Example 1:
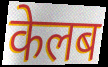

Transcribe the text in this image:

केलब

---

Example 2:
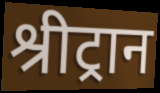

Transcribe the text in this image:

श्रीट्रान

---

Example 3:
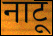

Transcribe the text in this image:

नाटू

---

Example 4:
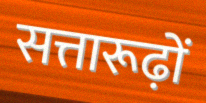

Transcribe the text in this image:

सत्तारूढ़ों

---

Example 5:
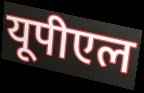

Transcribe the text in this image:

यूपीएल